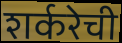
शर्करेची